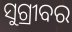
ସୁଗ୍ରୀବର